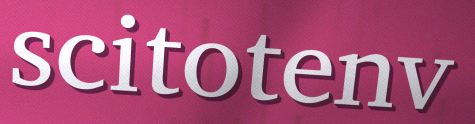
scitotenv